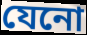
যেনো